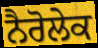
ਨੈਰੋਲੇਕ